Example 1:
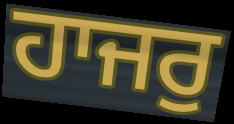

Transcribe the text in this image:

ਹਾਜਰੁ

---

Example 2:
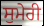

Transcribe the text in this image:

ਸੁਮੇਰੀ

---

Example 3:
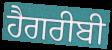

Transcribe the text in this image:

ਹੈਗਰੀਬੀ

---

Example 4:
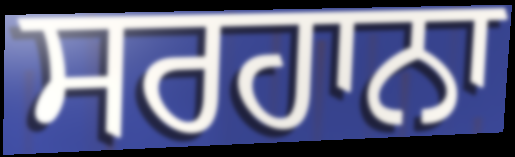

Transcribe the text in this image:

ਸਰਹਾਨਾ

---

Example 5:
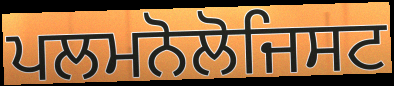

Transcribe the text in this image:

ਪਲਮਨੋਲੋਜਿਸਟ